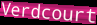
Verdcourt